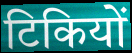
टिकियों